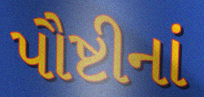
પૌષ્ટીનાં